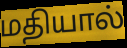
மதியால்